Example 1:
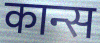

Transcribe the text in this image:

कान्‍स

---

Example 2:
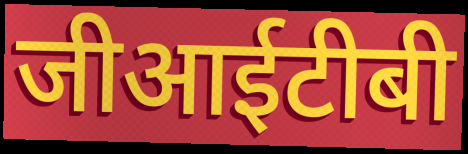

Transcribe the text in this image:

जीआईटीबी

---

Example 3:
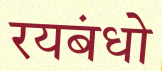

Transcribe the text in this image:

रयबंधो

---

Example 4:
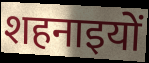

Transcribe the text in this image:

शहनाइयों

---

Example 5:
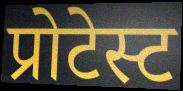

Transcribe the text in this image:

प्रोटेस्ट